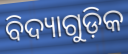
ବିଦ୍ୟାଗୁଡ଼ିକ